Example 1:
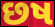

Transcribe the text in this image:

છષ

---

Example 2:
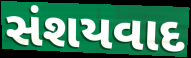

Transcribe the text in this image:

સંશયવાદ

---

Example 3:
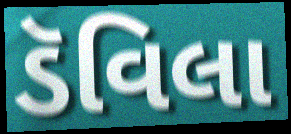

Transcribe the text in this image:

ડૅવિલા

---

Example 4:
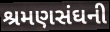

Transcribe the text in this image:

શ્રમણસંઘની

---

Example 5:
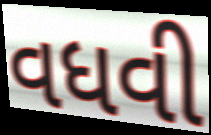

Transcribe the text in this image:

વધવી